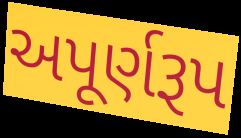
અપૂર્ણરૂપ